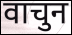
वाचुन